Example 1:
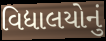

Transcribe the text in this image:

વિદ્યાલયોનું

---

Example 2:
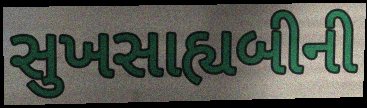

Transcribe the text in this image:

સુખસાહ્યબીની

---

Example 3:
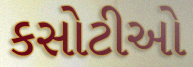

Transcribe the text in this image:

કસોટીઓ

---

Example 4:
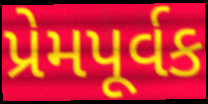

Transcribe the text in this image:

પ્રેમપૂર્વક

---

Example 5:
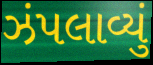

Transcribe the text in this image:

ઝંપલાવ્યું